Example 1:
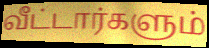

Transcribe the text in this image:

வீட்டார்களும்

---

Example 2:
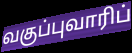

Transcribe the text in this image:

வகுப்புவாரிப்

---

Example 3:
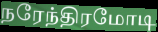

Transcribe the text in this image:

நரேந்திரமோடி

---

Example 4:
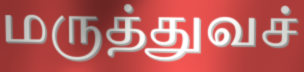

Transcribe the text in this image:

மருத்துவச்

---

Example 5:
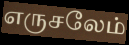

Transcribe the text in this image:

எருசலேம்